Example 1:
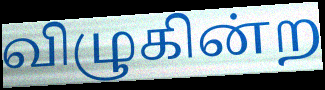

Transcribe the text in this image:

விழுகின்ற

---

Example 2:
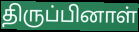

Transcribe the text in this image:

திருப்பினாள்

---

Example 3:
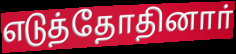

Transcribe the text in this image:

எடுத்தோதினார்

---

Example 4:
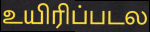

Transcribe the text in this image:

உயிரிப்படல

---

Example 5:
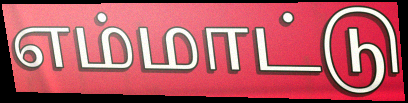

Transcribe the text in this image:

எம்மாட்டு